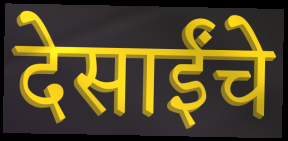
देसाईंचे